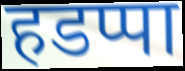
हडप्पा